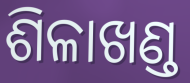
ଶିଳାଖଣ୍ଡ